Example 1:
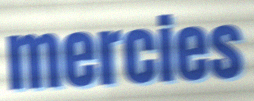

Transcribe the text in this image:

mercies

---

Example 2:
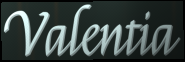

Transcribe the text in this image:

Valentia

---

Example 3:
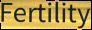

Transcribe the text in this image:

Fertility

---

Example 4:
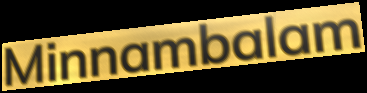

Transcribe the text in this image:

Minnambalam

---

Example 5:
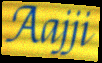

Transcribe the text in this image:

Aajji